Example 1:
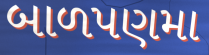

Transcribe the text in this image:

બાળપણમા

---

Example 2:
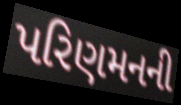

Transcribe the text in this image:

પરિણમનની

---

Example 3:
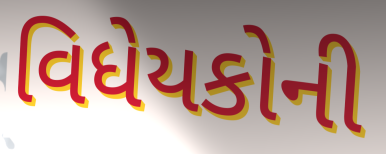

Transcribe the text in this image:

વિધેયકોની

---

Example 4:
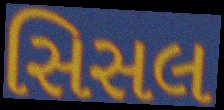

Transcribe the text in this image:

સિસલ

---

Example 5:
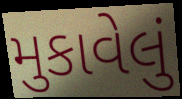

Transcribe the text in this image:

મુકાવેલું